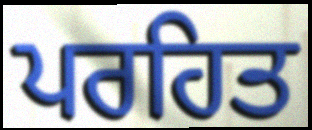
ਪਰਹਿਤ